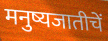
मनुष्यजातीचें